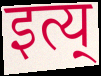
इत्य्